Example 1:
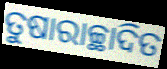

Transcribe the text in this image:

ତୁଷାରାଚ୍ଛାଦିତ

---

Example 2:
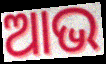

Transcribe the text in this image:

ଆଭ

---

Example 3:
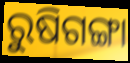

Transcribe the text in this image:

ରୁଷିଗଙ୍ଗା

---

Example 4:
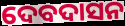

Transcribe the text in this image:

ଦେବଦାସନ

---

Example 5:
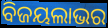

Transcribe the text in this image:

ବିଜୟଲାଭର